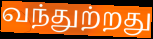
வந்துற்றது